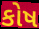
કોષ